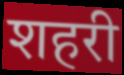
शहरी